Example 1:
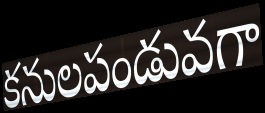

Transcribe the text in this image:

కనులపండువగా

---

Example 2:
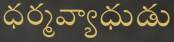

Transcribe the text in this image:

ధర్మవ్యాధుడు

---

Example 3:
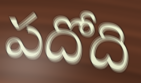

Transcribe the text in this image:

పదోది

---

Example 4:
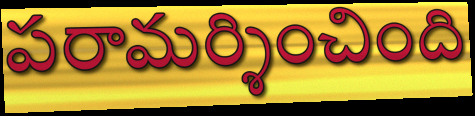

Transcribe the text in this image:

పరామర్శించింది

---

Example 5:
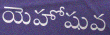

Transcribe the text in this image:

యెహోషువ